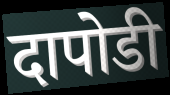
दापोडी